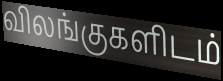
விலங்குகளிடம்